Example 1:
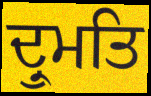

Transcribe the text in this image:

ਦ੍ਰੁਮਤਿ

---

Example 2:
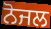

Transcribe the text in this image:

ਨੋਜਲ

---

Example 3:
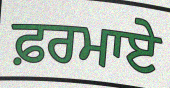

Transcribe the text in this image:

ਫ਼ਰਮਾਏ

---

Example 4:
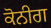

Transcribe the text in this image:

ਕੋਨੀਗ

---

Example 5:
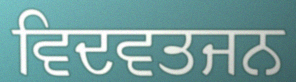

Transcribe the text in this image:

ਵਿਦਵਤਜਨ